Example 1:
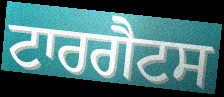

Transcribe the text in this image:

ਟਾਰਗੈਟਸ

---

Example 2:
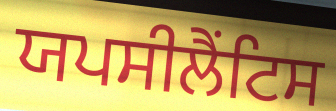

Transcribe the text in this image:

ਯਪਸੀਲੈਂਟਿਸ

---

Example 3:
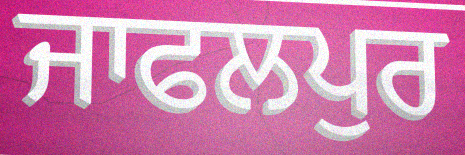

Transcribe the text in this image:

ਜਾਫਲਪੁਰ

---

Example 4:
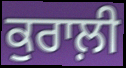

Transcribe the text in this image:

ਕੁਰਾਲ਼ੀ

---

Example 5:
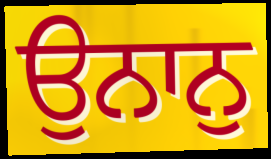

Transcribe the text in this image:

ਉਨਾਨੁ